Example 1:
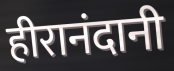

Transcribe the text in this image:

हीरानंदानी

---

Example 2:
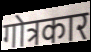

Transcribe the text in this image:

गोत्रकार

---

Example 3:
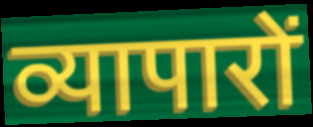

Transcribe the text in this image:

व्यापारों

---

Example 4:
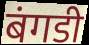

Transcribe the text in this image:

बंगडी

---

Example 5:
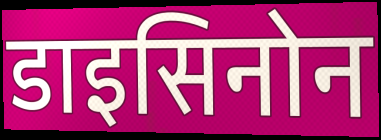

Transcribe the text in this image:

डाइसिनोन